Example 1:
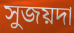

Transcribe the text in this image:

সুজয়দা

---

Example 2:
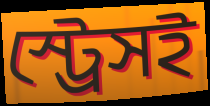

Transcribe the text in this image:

স্ট্রেসই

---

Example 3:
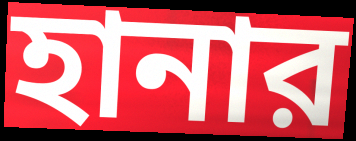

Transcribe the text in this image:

হানার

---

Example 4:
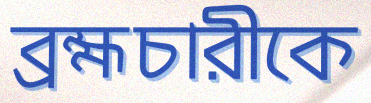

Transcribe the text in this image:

ব্রহ্মচারীকে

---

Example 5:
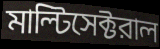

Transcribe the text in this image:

মাল্টিসেক্টরাল